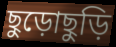
ছুড়োছুড়ি